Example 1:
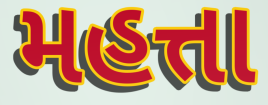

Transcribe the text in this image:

મહત્તા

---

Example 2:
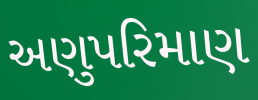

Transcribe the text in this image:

અણુપરિમાણ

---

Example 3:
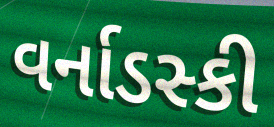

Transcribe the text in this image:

વર્નાડસ્કી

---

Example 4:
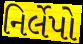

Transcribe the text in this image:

નિર્લેપો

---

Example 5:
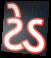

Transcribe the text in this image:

ટેડ